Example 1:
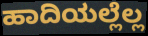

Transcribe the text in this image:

ಹಾದಿಯಲ್ಲೆಲ್ಲ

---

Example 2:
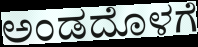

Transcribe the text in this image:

ಅಂಡದೊಳಗೆ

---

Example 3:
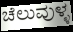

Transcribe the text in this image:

ಚೆಲುವುಳ್ಳ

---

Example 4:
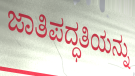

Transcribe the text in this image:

ಜಾತಿಪದ್ಧತಿಯನ್ನು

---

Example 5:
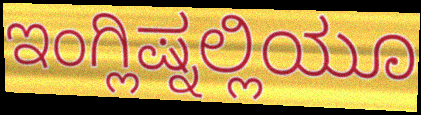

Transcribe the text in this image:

ಇಂಗ್ಲಿಷ್ನಲ್ಲಿಯೂ